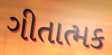
ગીતાત્મક